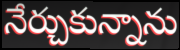
నేర్చుకున్నాను